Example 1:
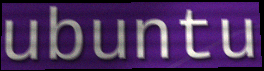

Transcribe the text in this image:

ubuntu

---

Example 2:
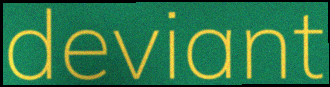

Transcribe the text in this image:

deviant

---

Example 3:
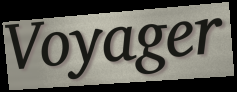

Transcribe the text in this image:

Voyager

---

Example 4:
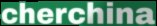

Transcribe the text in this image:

cherchina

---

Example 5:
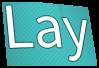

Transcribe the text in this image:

Lay